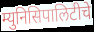
म्युनिसिपालिटीचे